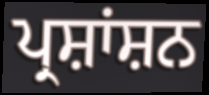
ਪ੍ਰਸ਼ਾਂਸ਼ਨ